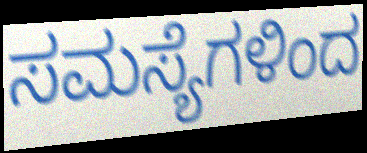
ಸಮಸ್ಯೆಗಳಿಂದ